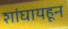
शांघायहून